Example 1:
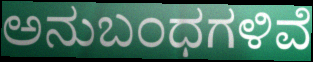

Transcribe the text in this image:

ಅನುಬಂಧಗಳಿವೆ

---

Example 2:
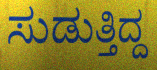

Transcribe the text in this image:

ಸುಡುತ್ತಿದ್ದ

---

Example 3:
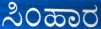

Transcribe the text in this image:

ಸಿಂಹಾರ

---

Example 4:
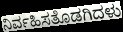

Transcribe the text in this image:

ನಿರ್ವಹಿಸತೊಡಗಿದಳು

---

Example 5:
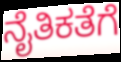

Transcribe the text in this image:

ನೈತಿಕತೆಗೆ